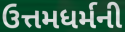
ઉત્તમધર્મની